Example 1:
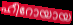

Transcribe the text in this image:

ഹീറോയായ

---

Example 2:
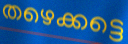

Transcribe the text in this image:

തഴെക്കട്ടെ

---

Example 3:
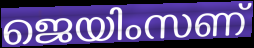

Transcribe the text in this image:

ജെയിംസണ്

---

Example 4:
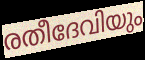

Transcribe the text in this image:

രതീദേവിയും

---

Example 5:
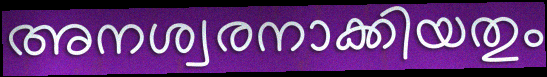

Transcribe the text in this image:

അനശ്വരനാക്കിയതും